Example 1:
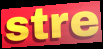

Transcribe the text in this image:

stre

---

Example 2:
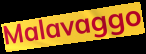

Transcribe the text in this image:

Malavaggo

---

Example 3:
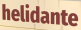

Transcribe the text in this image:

helidante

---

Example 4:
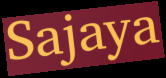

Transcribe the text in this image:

Sajaya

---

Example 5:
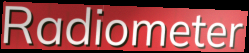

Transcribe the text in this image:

Radiometer